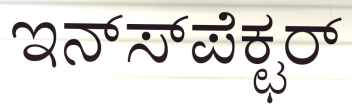
ಇನ್ಸ್‍ಪೆಕ್ಟರ್